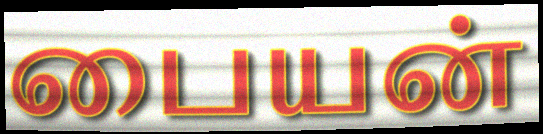
பையன்